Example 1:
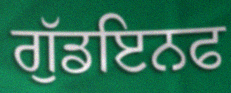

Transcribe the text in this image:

ਗੁੱਡਇਨਫ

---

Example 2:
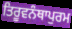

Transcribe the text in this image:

ਤਿਰੂਵਨੰਥਾਪੁਰਮ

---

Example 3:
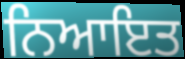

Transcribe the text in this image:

ਨਿਆਇਤ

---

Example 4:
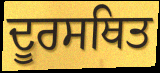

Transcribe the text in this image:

ਦੂਰਸਥਿਤ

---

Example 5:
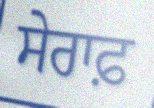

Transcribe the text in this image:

ਸੇਰਾਫ਼